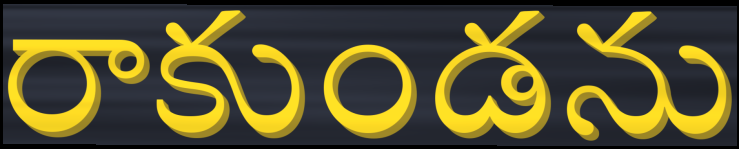
రాకుండను